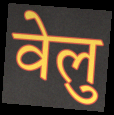
वेलु